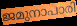
ജമുനാപാരി